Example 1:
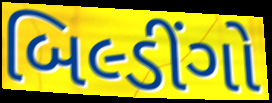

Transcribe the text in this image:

બિલ્ડીંગો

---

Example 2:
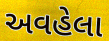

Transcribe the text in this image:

અવહેલા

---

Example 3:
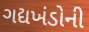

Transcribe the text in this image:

ગદ્યખંડોની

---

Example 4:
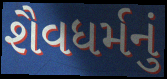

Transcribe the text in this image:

શૈવધર્મનું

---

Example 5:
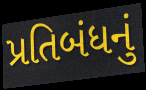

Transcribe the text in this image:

પ્રતિબંધનું